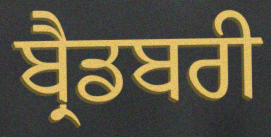
ਬ੍ਰੈਡਬਰੀ